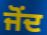
ਜੋਂਦ